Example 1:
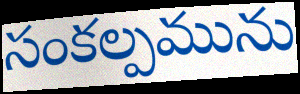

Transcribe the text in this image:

సంకల్పమును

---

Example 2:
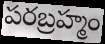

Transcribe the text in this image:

పరబ్రహ్మం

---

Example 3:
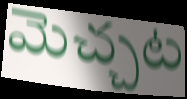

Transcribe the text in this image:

మెచ్చట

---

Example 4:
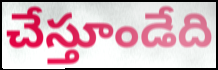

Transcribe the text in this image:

చేస్తూండేది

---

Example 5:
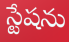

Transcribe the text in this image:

స్టేషను